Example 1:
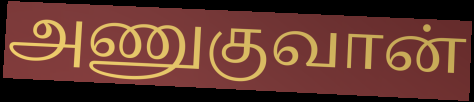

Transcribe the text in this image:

அணுகுவான்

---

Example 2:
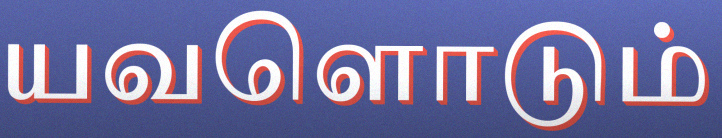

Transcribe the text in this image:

யவளொடும்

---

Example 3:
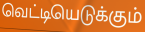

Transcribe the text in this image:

வெட்டியெடுக்கும்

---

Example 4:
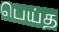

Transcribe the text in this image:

பெய்த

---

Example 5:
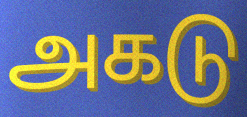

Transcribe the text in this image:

அகடு